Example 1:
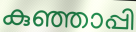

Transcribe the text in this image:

കുഞ്ഞാപ്പി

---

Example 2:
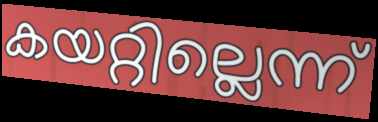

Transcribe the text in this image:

കയറ്റില്ലെന്ന്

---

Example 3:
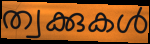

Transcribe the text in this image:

ത്വക്കുകൾ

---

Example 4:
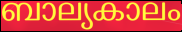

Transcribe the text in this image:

ബാല്യകാലം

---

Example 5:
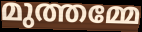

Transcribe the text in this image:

മുത്തമ്മേ